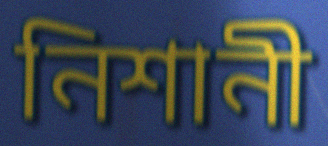
নিশানী